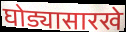
घोड्यासारखे